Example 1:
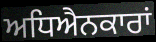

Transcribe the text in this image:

ਅਧਿਐਨਕਾਰਾਂ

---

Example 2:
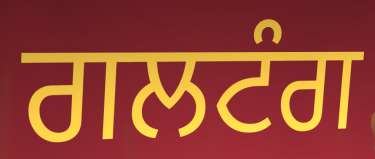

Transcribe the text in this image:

ਗਲਟੰਗ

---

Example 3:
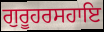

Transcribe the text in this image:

ਗੁਰੂਹਰਸਹਾਇ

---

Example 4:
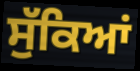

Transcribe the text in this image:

ਸੁੱਕਿਆਂ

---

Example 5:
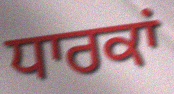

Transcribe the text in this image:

ਧਾਰਕਾਂ